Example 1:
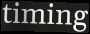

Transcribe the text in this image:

timing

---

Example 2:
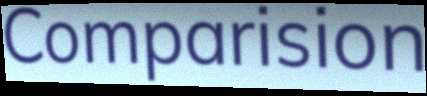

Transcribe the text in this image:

Comparision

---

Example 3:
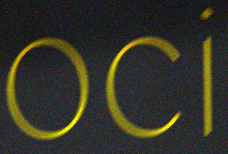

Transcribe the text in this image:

oci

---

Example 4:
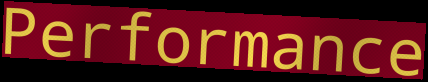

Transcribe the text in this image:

Performance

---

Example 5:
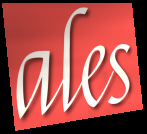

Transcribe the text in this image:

ales